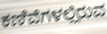
ಕಣಿವೆಗಳಲ್ಲಿರುವ